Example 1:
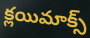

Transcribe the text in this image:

క్లయిమాక్స్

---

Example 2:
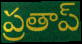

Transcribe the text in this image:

ప్రతాప్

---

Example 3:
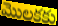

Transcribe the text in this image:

మొలకకు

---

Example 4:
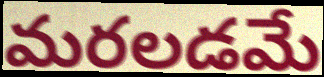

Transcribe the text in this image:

మరలడమే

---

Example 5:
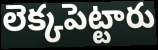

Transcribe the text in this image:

లెక్కపెట్టారు